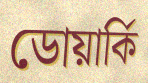
ডোয়ার্কি